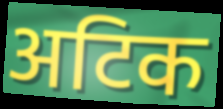
अटिक